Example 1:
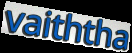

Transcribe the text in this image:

vaiththa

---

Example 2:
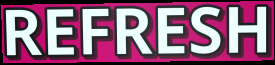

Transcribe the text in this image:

REFRESH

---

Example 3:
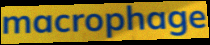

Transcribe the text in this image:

macrophage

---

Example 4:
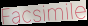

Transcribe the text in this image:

Facsimile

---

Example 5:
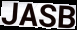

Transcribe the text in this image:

JASB